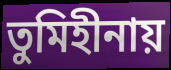
তুমিহীনায়